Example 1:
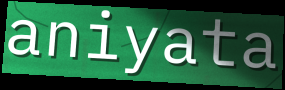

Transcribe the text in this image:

aniyata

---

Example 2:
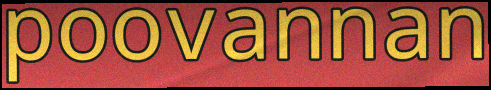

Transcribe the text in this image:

poovannan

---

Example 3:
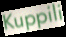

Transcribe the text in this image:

Kuppili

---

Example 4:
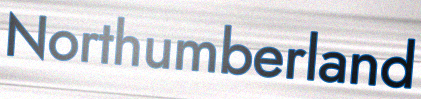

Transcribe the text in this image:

Northumberland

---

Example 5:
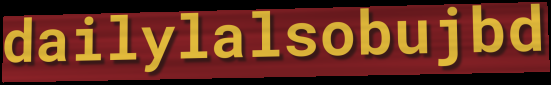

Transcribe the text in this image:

dailylalsobujbd